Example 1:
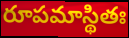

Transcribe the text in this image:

రూపమాస్థితః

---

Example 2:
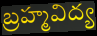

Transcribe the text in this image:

బ్రహ్మవిద్య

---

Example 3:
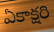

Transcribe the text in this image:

ఏకాక్షరి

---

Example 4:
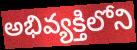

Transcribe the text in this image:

అభివ్యక్తిలోని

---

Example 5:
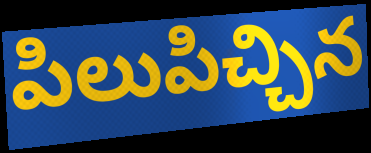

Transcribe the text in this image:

పిలుపిచ్చిన